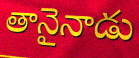
తానైనాడు